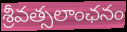
శ్రీవత్సలాంఛనం